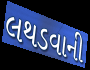
લથડવાની